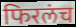
फिरलंच